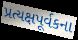
પ્રત્યક્ષપૂર્વકના